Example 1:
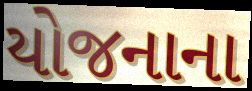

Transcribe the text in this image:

યોજનાના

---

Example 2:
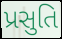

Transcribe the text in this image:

પ્રસુતિ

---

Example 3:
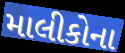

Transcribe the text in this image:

માલીકોના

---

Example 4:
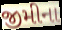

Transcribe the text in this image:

જીમીના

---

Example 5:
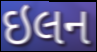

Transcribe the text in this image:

ઇલન